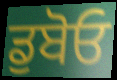
ਡੁਬੋਓ